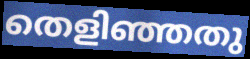
തെളിഞ്ഞതു